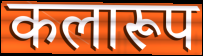
कलारूप